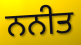
ਨਨੀਤ